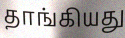
தாங்கியது